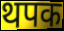
थपक